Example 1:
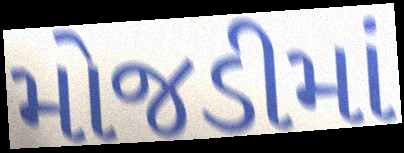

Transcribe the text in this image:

મોજડીમાં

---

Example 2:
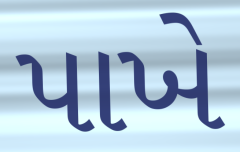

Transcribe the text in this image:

પાખે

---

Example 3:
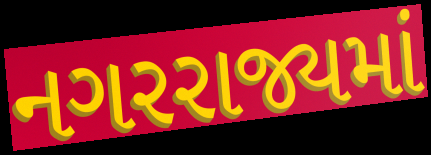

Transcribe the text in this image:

નગરરાજ્યમાં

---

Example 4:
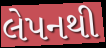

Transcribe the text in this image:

લેપનથી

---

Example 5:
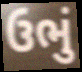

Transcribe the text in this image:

ઉભું